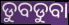
ଡୁବଡୁବା